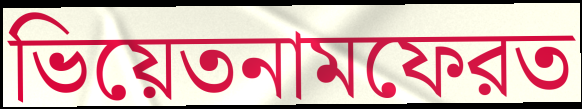
ভিয়েতনামফেরত